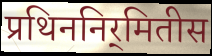
प्रथिननिर्मितीस